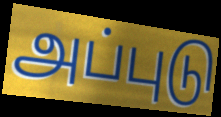
அப்புடு